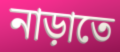
নাড়াতে